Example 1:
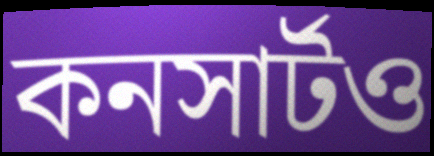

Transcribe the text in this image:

কনসার্টও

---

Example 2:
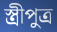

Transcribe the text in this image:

স্ত্রীপুত্র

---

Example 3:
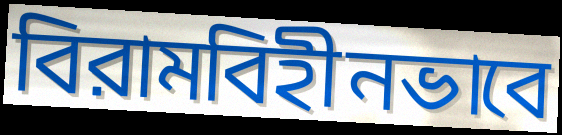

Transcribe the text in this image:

বিরামবিহীনভাবে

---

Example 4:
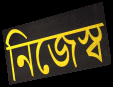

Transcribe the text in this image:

নিজেস্ব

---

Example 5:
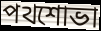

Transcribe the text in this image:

পথশোভা